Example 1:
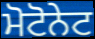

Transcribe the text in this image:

ਮੋਟੋਨੇਟ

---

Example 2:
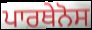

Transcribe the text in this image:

ਪਾਰਥੇਨੋਸ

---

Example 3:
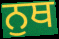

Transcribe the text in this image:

ਨੁਥ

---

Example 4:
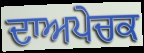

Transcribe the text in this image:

ਦਾਅਪੇਚਕ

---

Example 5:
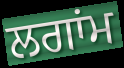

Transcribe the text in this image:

ਲਗਾਂਮ